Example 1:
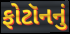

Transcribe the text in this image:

ફોટૉનનું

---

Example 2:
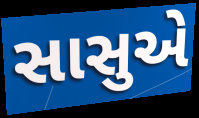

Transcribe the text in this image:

સાસુએ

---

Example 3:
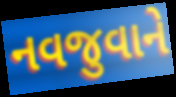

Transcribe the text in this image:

નવજુવાને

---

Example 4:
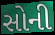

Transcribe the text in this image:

સોની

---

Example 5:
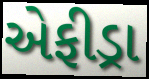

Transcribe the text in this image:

એફીડ્રા